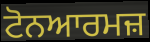
ਟੋਨਆਰਮਜ਼